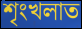
শৃংখলাত